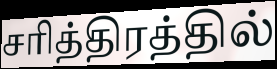
சரித்திரத்தில்